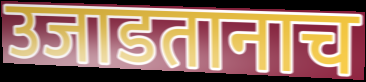
उजाडतानाच